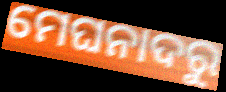
ମେଘନାଦରୁ